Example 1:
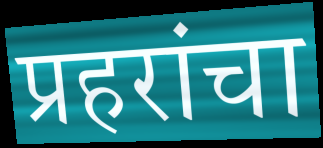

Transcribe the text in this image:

प्रहरांचा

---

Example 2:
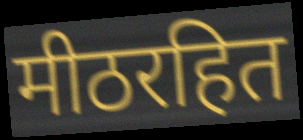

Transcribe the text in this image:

मीठरहित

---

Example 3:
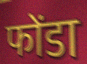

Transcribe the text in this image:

फोंडा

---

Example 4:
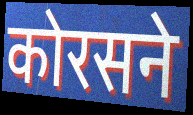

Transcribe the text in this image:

कोरसने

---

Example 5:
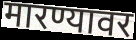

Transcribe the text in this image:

मारण्यावर